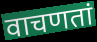
वाचणतां